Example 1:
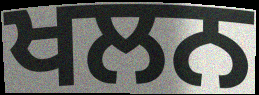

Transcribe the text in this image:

ਖਲਨ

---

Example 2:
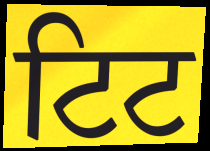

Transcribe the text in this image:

ਟਿਟ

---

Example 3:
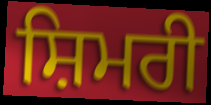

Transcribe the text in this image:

ਸ਼ਿਮਰੀ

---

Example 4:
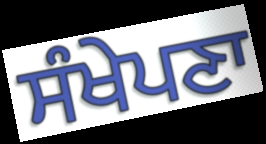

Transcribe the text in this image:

ਸੰਖੇਪਣਾ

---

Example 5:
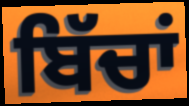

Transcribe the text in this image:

ਬਿੱਚਾਂ